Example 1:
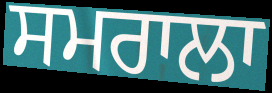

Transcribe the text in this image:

ਸਮਰਾਲਾ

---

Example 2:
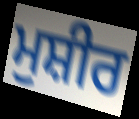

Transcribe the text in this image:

ਮੁਸ਼ੀਰ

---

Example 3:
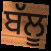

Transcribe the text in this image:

ਬੱਲੂ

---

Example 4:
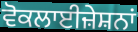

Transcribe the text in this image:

ਵੋਕਲਾਈਜ਼ੇਸ਼ਨਾਂ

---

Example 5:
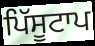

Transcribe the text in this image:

ਪਿੱਸੂਟਾਪ